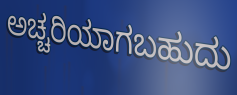
ಅಚ್ಚರಿಯಾಗಬಹುದು